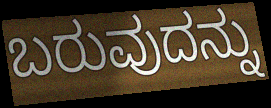
ಬರುವುದನ್ನು